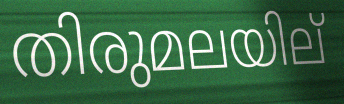
തിരുമലയില്